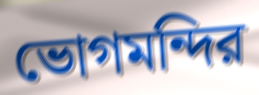
ভোগমন্দির